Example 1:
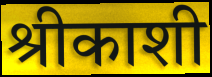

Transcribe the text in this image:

श्रीकाशी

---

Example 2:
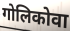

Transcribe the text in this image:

गोलिकोवा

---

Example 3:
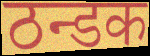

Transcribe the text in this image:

ठन्डक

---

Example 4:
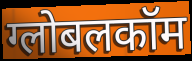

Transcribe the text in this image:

ग्लोबलकॉम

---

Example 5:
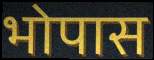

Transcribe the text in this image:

भोपास